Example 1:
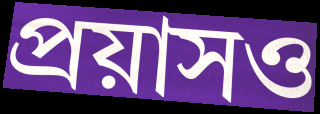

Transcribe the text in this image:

প্রয়াসও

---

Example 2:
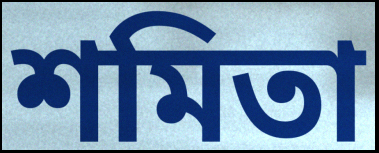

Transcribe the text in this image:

শমিতা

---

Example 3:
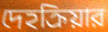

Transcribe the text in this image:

দেহক্রিয়ার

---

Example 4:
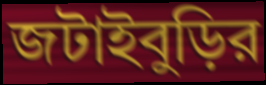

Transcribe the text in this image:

জটাইবুড়ির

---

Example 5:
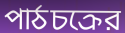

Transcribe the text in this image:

পাঠচক্রের